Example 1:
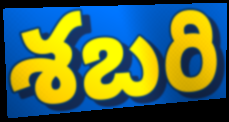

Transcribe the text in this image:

శబరి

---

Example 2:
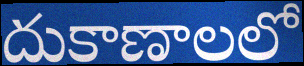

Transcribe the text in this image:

దుకాణాలలో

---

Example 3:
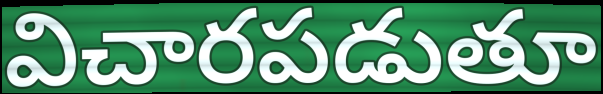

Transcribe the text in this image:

విచారపడుతూ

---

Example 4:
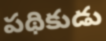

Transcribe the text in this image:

పథికుడు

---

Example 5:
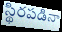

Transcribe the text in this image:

స్థిరపడినా